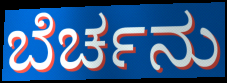
ಬೆರ್ಚನು